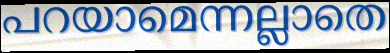
പറയാമെന്നല്ലാതെ